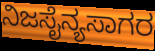
ನಿಜಸೈನ್ಯಸಾಗರ